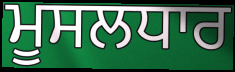
ਮੂਸਲਧਾਰ